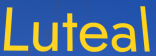
Luteal